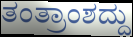
ತಂತ್ರಾಂಶದ್ದು